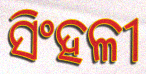
ସିଂହଳୀ